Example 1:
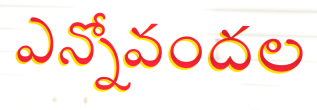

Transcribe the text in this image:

ఎన్నోవందల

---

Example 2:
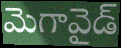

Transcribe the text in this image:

మెగావైడ్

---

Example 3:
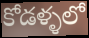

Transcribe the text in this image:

కోడళ్ళలో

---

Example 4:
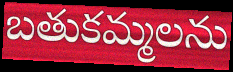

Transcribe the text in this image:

బతుకమ్మలను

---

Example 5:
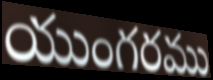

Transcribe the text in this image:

యుంగరము